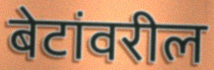
बेटांवरील